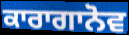
ਕਾਰਾਗਾਨੋਵ